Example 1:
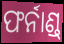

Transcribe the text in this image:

ଫର୍ନାଣ୍ଡ୍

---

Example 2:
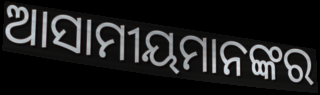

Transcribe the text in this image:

ଆସାମୀୟମାନଙ୍କର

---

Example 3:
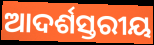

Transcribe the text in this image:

ଆଦର୍ଶସ୍ତରୀୟ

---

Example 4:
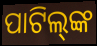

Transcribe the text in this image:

ପାଟିଲ୍‌ଙ୍କ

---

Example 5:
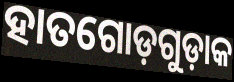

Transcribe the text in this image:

ହାତଗୋଡ଼ଗୁଡ଼ାକ